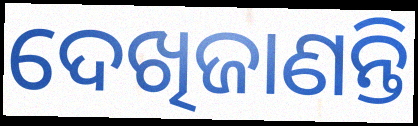
ଦେଖିଜାଣନ୍ତି